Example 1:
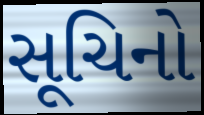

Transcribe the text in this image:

સૂચિનો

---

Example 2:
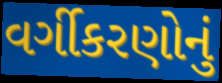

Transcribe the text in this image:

વર્ગીકરણોનું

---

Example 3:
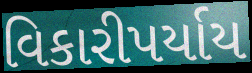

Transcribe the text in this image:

વિકારીપર્યાય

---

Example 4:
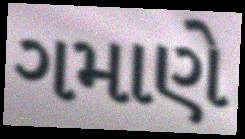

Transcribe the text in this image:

ગમાણે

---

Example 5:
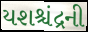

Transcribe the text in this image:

યશશ્ચંદ્રની